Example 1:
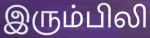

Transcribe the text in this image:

இரும்பிலி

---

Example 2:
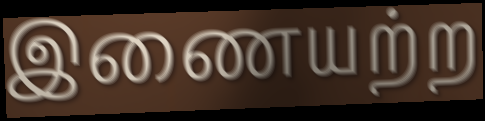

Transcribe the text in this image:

இணையற்ற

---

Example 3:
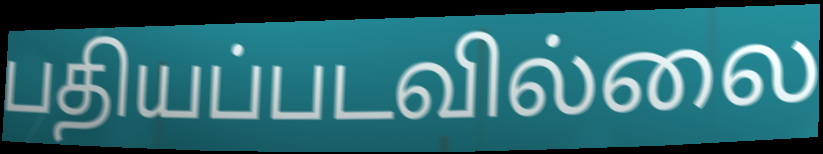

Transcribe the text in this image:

பதியப்படவில்லை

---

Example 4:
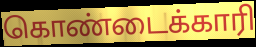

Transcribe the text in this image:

கொண்டைக்காரி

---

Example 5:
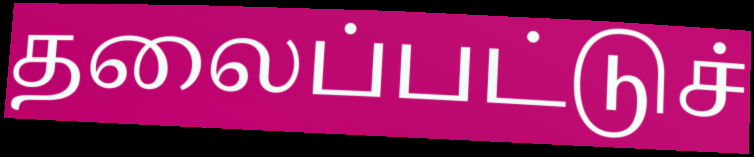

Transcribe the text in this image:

தலைப்பட்டுச்